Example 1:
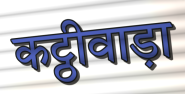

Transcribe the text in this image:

कट्ठीवाड़ा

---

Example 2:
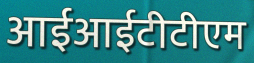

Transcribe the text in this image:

आईआईटीटीएम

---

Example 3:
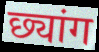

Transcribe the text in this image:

छ्यांग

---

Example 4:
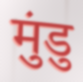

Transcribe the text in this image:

मुंडु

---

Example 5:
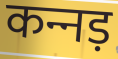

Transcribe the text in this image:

कन्‍नड़